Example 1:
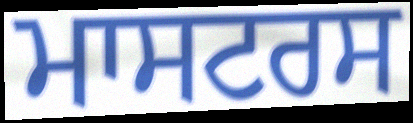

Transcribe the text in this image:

ਮਾਸਟਰਸ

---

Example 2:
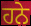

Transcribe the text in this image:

ਹਨੇ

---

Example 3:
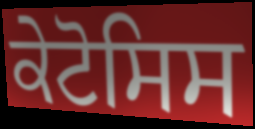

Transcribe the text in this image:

ਕੇਟੋਸਿਸ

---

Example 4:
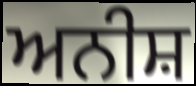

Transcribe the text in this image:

ਅਨੀਸ਼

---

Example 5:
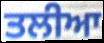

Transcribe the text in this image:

ਤਲੀਆ